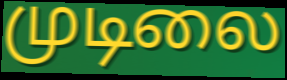
முடிலை